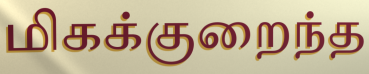
மிகக்குறைந்த